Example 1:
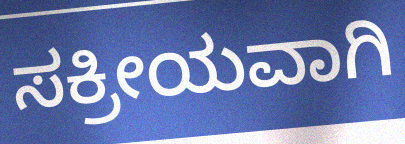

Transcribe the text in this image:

ಸಕ್ರೀಯವಾಗಿ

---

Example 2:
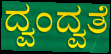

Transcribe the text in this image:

ದ್ವಂದ್ವತೆ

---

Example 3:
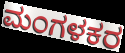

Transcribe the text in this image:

ಮಂಗಳಕರ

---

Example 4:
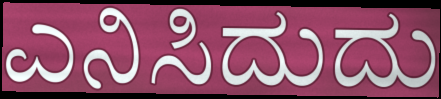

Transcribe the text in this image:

ಎನಿಸಿದುದು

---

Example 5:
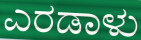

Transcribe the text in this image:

ಎರಡಾಳು